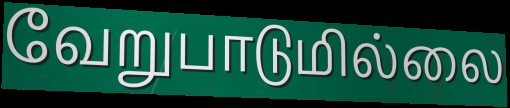
வேறுபாடுமில்லை